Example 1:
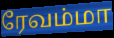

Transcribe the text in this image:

ரேவம்மா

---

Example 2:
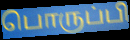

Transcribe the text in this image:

பொருப்பி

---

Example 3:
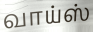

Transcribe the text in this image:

வாய்ஸ்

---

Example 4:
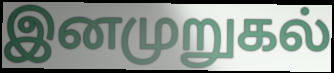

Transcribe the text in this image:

இனமுறுகல்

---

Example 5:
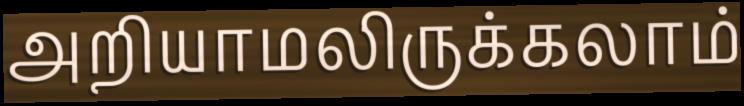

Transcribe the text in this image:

அறியாமலிருக்கலாம்